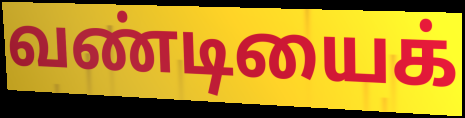
வண்டியைக்